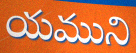
యముని